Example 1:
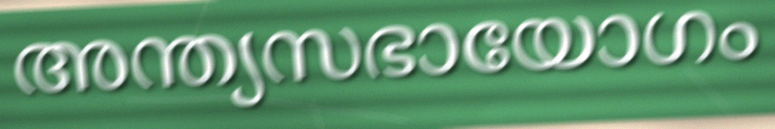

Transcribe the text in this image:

അന്ത്യസഭായോഗം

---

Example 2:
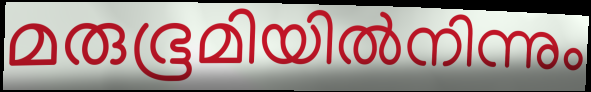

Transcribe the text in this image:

മരുഭൂമിയിൽനിന്നും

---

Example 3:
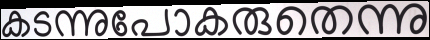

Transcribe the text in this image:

കടന്നുപോകരുതെന്നു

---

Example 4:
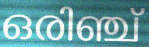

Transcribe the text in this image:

ഒരിഞ്ച്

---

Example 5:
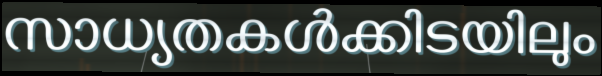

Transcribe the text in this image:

സാധ്യതകൾക്കിടയിലും